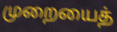
முறையைத்